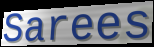
Sarees